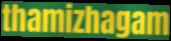
thamizhagam